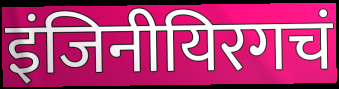
इंजिनीयिरगचं